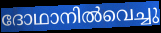
ദോഥാനിൽവെച്ചു